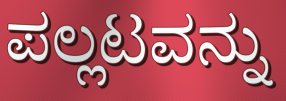
ಪಲ್ಲಟವನ್ನು